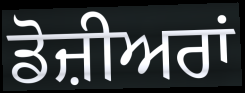
ਡੋਜ਼ੀਅਰਾਂ